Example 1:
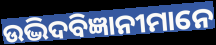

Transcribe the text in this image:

ଉଦ୍ଭିଦବିଜ୍ଞାନୀମାନେ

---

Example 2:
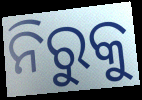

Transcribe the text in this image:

ନିରୁକୁ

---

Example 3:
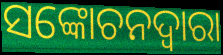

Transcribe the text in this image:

ସଙ୍କୋଚନଦ୍ୱାରା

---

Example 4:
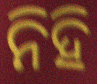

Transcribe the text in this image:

ନିହି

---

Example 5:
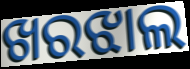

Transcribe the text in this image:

ଖରଝାଲ